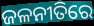
ଜଳନୀତିରେ